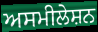
ਅਸਮੀਲੇਸ਼ਨ